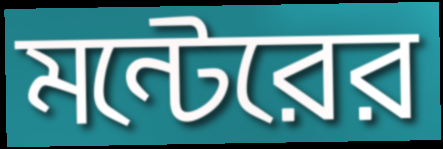
মন্টেরের